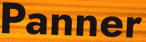
Panner